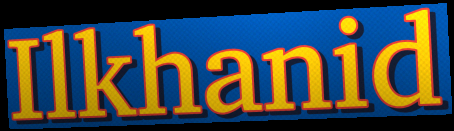
Ilkhanid